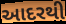
આદરથી